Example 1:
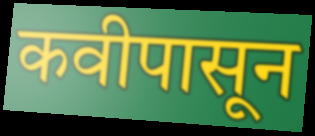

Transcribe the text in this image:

कवीपासून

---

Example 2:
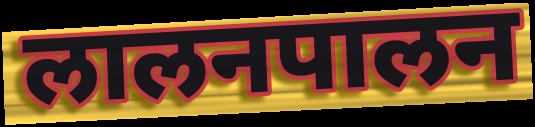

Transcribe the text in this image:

लालनपालन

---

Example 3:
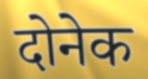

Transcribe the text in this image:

दोनेक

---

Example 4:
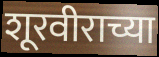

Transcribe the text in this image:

शूरवीराच्या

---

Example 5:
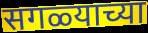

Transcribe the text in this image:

सगळ्याच्या